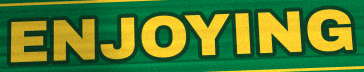
ENJOYING